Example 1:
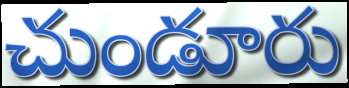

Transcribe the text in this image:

చుండూరు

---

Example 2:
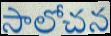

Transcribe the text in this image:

సాలోచన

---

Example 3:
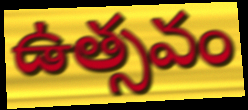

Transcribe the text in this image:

ఉత్సవం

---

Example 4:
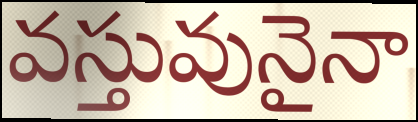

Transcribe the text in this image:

వస్తువునైనా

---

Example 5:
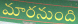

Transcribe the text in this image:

మారనుంది